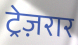
ट्रेज़रार